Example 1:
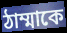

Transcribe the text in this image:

ঠাম্মাকে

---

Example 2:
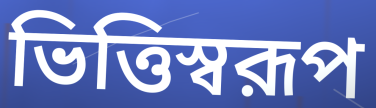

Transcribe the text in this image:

ভিত্তিস্বরূপ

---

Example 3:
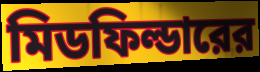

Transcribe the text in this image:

মিডফিল্ডারের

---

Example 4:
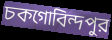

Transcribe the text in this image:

চকগোবিন্দপুর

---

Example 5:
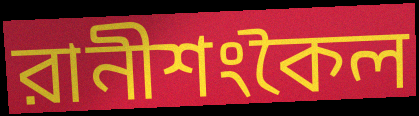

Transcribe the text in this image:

রানীশংকৈল